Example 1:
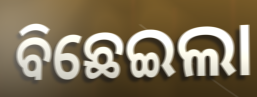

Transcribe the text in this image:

ବିଛେଇଲା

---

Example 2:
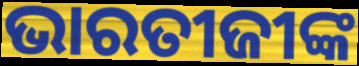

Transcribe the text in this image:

ଭାରତୀଜୀଙ୍କ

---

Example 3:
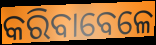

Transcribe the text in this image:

କରିବାବେଳେ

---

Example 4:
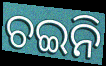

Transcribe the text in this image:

ଚଇନି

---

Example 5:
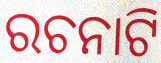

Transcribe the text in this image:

ରଚନାଟି